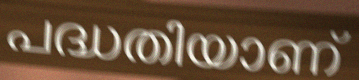
പദ്ധതിയാണ്